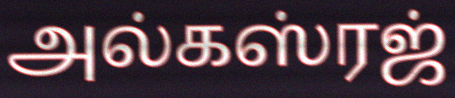
அல்கஸ்ரஜ்